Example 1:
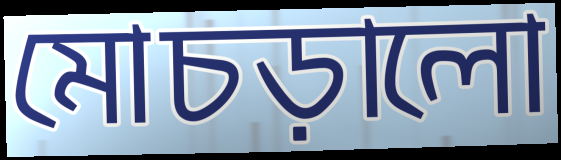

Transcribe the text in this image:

মোচড়ালো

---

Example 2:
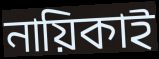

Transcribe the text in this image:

নায়িকাই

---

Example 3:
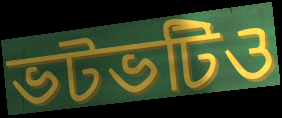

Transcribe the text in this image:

ভটভটিও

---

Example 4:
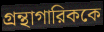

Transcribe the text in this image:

গ্রন্থাগারিককে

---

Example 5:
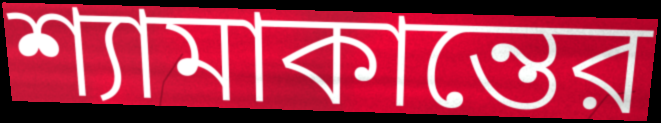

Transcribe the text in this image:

শ্যামাকান্তের